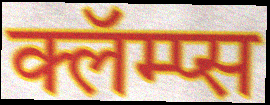
क्लॅम्प्स